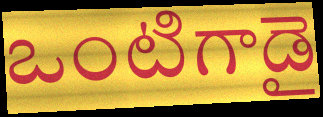
ఒంటిగాడై